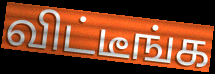
விட்டீங்க